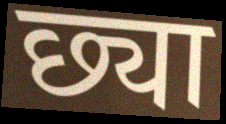
छ्या